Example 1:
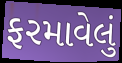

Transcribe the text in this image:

ફરમાવેલું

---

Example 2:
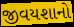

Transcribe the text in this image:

જીવયશાનો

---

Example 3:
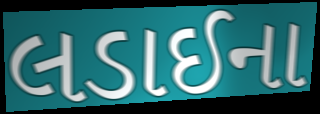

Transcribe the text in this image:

લડાઈના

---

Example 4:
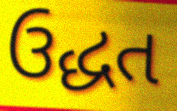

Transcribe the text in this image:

ઉદ્ધત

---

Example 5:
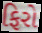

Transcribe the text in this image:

ફિરો